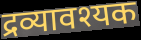
द्रव्यावश्यक